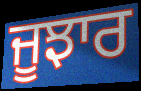
ਜੂਝਾਰ